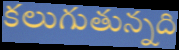
కలుగుతున్నది